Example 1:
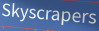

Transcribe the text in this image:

Skyscrapers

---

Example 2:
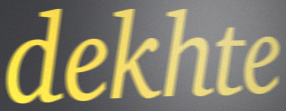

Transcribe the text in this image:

dekhte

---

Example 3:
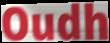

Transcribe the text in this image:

Oudh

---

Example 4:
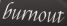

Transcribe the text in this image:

burnout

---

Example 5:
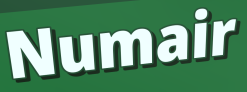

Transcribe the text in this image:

Numair